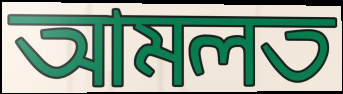
আমলত